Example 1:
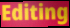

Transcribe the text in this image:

Editing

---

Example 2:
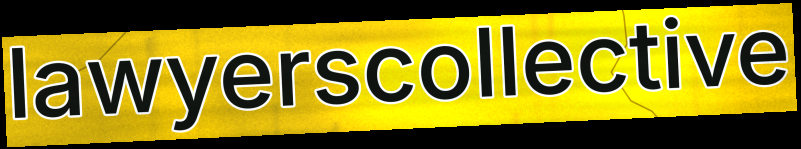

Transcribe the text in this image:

lawyerscollective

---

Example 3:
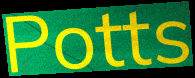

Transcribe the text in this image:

Potts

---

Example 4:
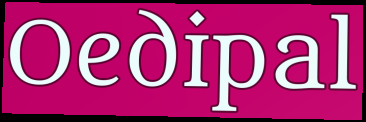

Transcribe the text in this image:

Oedipal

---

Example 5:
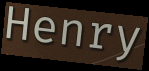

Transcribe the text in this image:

Henry